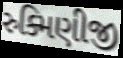
રુક્મિણીજી